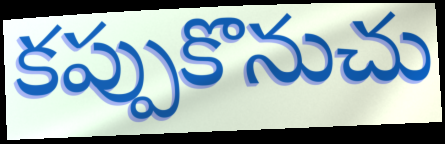
కప్పుకొనుచు